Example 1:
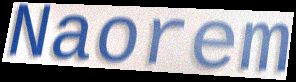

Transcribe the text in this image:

Naorem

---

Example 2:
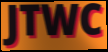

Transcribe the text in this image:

JTWC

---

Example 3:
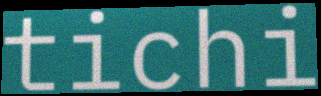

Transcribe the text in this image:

tichi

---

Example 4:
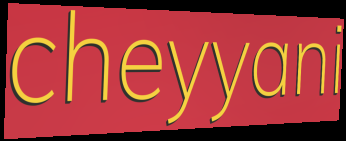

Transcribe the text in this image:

cheyyani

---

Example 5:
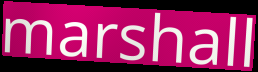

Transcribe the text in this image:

marshall